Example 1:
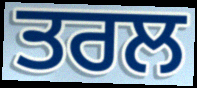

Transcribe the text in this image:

ਤਰਲ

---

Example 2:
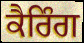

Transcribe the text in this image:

ਕੈਰਿੰਗ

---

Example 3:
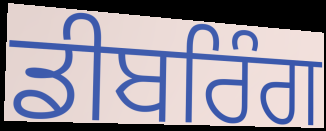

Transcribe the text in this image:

ਡੀਬਰਿੰਗ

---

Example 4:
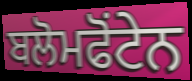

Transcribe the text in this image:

ਬਲੋਮਫੋਂਟੇਨ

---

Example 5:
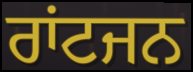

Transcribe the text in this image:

ਰਾਂਟਜਨ